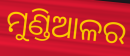
ମୁଣ୍ଡିଆଳର